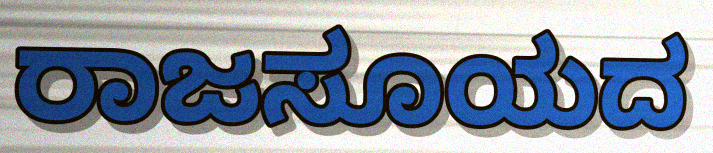
ರಾಜಸೂಯದ